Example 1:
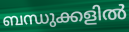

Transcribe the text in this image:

ബന്ധുക്കളിൽ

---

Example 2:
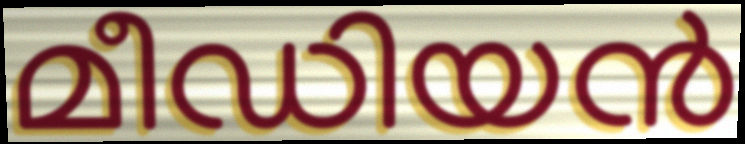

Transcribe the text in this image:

മീഡിയൻ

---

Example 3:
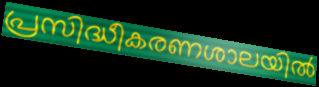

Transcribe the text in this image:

പ്രസിദ്ധീകരണശാലയിൽ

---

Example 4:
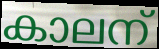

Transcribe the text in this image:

കാലന്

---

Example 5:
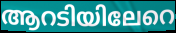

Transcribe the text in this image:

ആറടിയിലേറെ